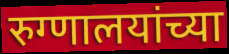
रुग्णालयांच्या